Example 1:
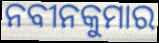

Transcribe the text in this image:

ନବୀନକୁମାର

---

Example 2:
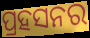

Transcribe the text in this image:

ପ୍ରହସନର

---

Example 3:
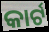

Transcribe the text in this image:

କାର୍ଟ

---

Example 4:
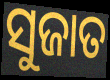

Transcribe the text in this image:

ସୁଜାତ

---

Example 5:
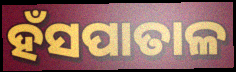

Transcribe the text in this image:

ହଁସପାତାଳ